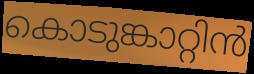
കൊടുങ്കാറ്റിൻ